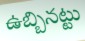
ఉబ్బినట్టు